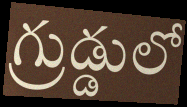
గ్రుడ్డులో